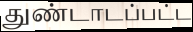
துண்டாடப்பட்ட